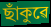
ছাঁকুৱে